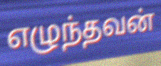
எழுந்தவன்